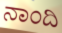
ನಾಂದಿ